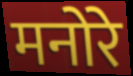
मनोरे